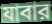
যাবার